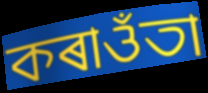
কৰাওঁতা